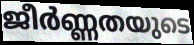
ജീർണ്ണതയുടെ